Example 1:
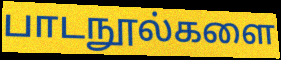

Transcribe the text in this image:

பாடநூல்களை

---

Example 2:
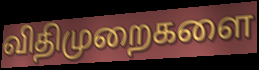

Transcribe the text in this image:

விதிமுறைகளை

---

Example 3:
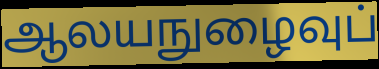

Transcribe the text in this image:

ஆலயநுழைவுப்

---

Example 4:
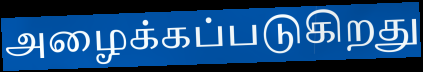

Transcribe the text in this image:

அழைக்கப்படுகிறது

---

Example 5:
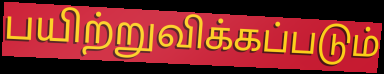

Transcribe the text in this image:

பயிற்றுவிக்கப்படும்